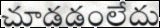
చూడడంలేదు